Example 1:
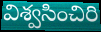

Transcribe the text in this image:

విశ్వసించిరి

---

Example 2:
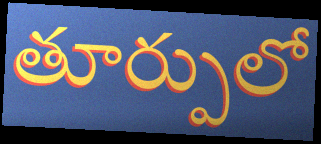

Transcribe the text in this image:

తూర్పులో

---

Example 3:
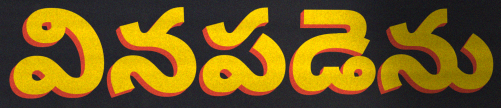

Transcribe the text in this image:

వినపడెను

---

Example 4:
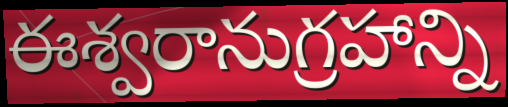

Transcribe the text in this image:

ఈశ్వరానుగ్రహాన్ని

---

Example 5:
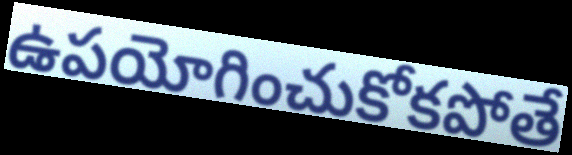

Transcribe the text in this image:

ఉపయోగించుకోకపోతే